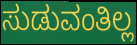
ಸುಡುವಂತಿಲ್ಲ